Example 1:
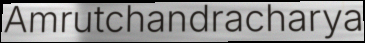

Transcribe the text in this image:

Amrutchandracharya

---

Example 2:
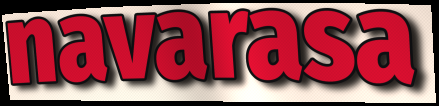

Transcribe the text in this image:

navarasa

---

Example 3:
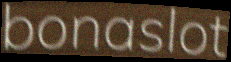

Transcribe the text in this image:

bonaslot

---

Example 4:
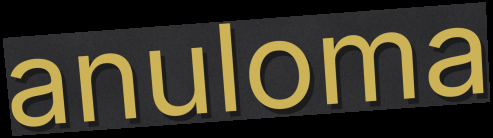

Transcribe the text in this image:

anuloma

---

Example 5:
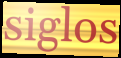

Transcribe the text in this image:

siglos